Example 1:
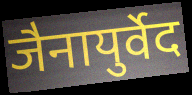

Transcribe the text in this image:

जैनायुर्वेद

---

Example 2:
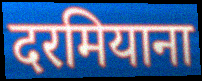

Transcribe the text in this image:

दरमियाना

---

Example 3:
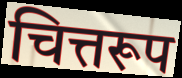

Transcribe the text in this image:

चित्तरूप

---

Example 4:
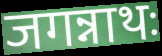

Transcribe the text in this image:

जगन्नाथः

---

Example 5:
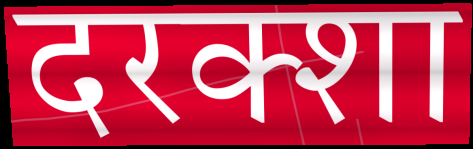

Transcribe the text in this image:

दरक्शा